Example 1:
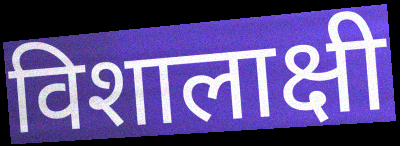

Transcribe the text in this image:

विशालाक्षी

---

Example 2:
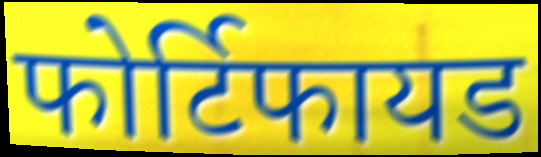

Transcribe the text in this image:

फोर्टिफायड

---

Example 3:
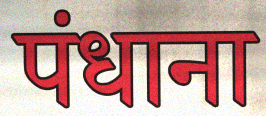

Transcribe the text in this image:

पंधाना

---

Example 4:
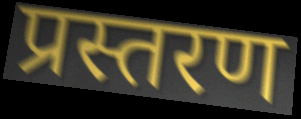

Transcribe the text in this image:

प्रस्तरण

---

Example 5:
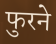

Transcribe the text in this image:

फुरने